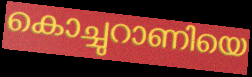
കൊച്ചുറാണിയെ